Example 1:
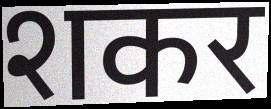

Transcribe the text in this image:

शकर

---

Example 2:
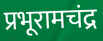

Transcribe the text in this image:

प्रभूरामचंद्र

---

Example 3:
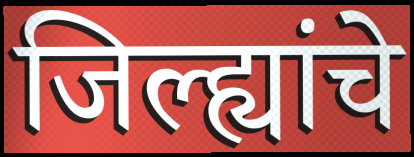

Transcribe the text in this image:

जिल्ह्यांचे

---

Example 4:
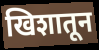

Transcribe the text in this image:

खिशातून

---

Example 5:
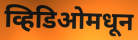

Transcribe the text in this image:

व्हिडिओमधून